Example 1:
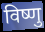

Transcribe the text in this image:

विष्णु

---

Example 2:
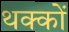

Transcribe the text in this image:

थक्कों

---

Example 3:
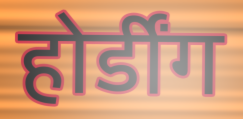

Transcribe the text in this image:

होर्डींग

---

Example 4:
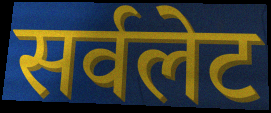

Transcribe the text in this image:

सर्वलेट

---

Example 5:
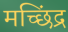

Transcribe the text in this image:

मच्छिंद्र